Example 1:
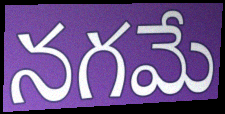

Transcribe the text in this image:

నగమే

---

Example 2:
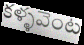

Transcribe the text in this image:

కళ్ళవెంట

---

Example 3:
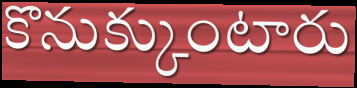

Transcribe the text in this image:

కొనుక్కుంటారు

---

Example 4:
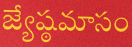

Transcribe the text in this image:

జ్యేష్ఠమాసం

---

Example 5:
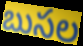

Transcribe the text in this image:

బుసల